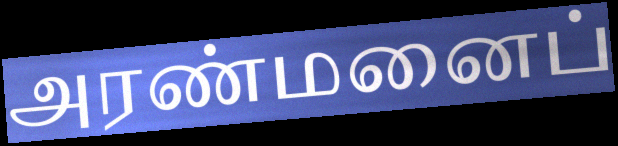
அரண்மனைப்